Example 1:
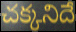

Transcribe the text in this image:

చక్కనిదే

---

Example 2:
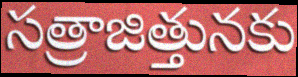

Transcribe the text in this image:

సత్రాజిత్తునకు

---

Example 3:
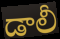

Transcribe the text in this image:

డాలీ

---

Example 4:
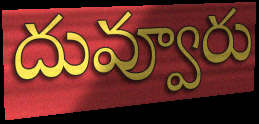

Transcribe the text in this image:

దువ్వూరు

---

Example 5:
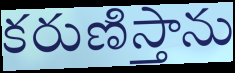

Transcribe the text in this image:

కరుణిస్తాను